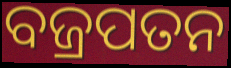
ବଜ୍ରପତନ